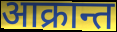
आक्रान्त